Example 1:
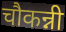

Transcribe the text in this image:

चौकन्नी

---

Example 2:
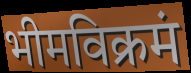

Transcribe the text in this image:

भीमविक्रमं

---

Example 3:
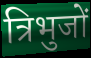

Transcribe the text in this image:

त्रिभुजों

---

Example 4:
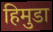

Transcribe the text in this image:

हिमुडा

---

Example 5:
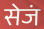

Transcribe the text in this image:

सेजं